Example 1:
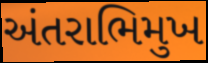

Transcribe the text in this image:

અંતરાભિમુખ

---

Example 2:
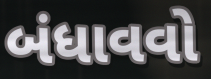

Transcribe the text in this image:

બંધાવવો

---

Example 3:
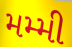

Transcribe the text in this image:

મમ્મી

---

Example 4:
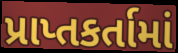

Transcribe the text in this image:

પ્રાપ્તકર્તામાં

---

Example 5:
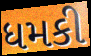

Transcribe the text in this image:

ધમકી